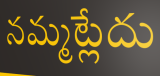
నమ్మట్లేదు